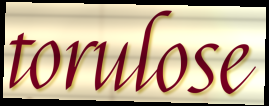
torulose